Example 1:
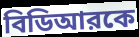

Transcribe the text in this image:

বিডিআরকে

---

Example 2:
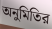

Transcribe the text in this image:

অনুমিতির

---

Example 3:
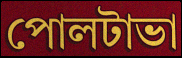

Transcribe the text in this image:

পোলটাভা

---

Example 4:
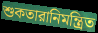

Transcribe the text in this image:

শুকতারানিমন্ত্রিত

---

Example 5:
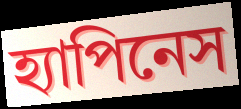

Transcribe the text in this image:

হ্যাপিনেস